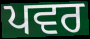
ਪਵਰ